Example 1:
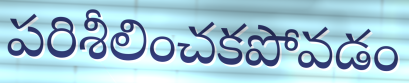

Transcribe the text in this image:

పరిశీలించకపోవడం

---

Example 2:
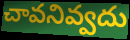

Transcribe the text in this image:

చావనివ్వదు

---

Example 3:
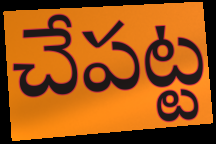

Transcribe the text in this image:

చేపట్ట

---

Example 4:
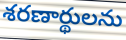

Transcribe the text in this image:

శరణార్థులను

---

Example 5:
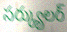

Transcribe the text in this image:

సర్క్యులర్